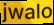
jwalo